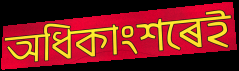
অধিকাংশৰেই